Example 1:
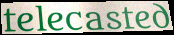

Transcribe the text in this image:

telecasted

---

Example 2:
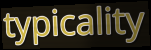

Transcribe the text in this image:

typicality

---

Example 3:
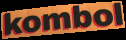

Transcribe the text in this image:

kombol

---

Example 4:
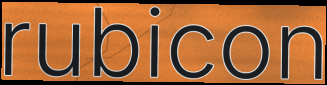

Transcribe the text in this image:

rubicon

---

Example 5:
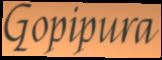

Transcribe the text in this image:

Gopipura